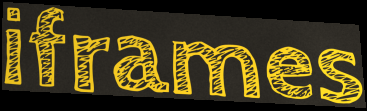
iframes